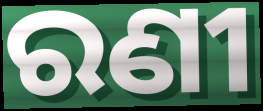
ରଣୀ